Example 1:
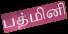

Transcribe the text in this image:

பத்மினி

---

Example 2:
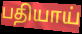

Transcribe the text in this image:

பதியாய்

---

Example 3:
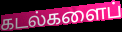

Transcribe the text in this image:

கடல்களைப்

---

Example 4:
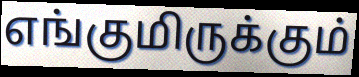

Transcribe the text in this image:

எங்குமிருக்கும்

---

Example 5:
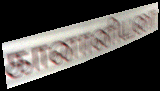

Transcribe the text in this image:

கானானியரை